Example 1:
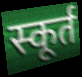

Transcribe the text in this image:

स्कूर्त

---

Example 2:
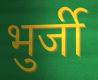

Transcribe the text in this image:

भुर्जी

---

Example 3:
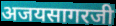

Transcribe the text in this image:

अजयसागरजी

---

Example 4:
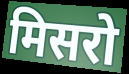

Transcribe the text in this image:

मिसरो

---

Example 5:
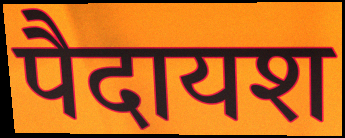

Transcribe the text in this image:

पैदायश